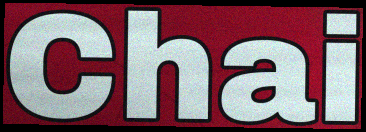
Chai